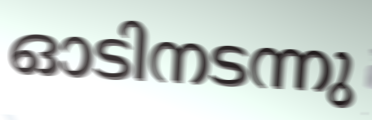
ഓടിനടന്നു